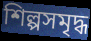
শিল্পসমৃদ্ধ